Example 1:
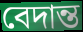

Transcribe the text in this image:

বেদান্ত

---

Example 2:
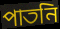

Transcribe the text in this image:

পাতনি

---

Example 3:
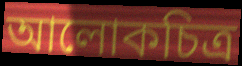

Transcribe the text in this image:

আলোকচিত্ৰ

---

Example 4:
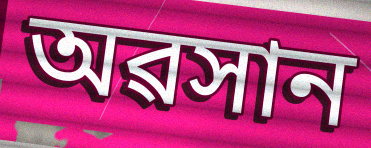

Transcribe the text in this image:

অৱসান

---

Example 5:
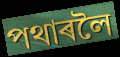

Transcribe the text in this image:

পথাৰলৈ